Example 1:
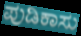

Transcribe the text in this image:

ಪುಡಿಕಾಸು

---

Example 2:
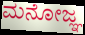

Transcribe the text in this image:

ಮನೋಜ್ಞ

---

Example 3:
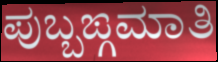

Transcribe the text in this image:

ಪುಬ್ಬಙ್ಗಮಾತಿ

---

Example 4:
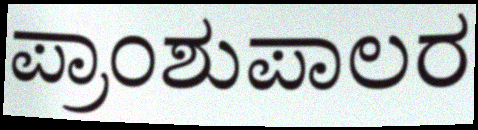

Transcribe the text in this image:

ಪ್ರಾಂಶುಪಾಲರ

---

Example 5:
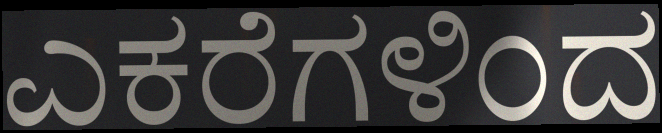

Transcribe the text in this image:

ಎಕರೆಗಳಿಂದ